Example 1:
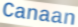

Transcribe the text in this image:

Canaan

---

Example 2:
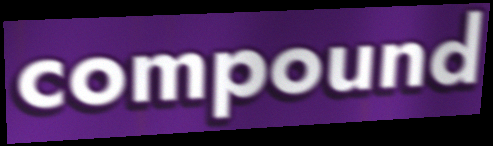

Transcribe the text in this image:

compound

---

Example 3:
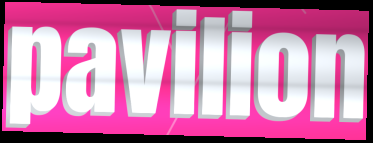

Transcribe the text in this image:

pavilion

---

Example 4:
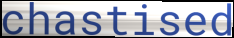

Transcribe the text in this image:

chastised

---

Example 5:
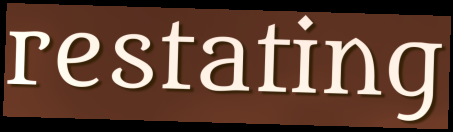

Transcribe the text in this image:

restating